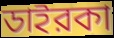
ডাইরকা